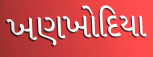
ખણખોદિયા